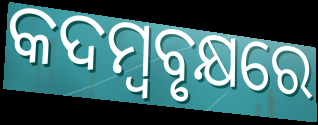
କଦମ୍ୱବୃକ୍ଷରେ